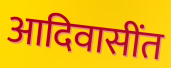
आदिवासींत